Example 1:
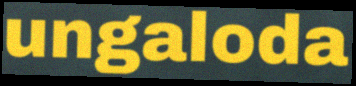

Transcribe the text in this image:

ungaloda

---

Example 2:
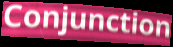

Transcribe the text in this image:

Conjunction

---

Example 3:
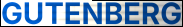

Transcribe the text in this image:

GUTENBERG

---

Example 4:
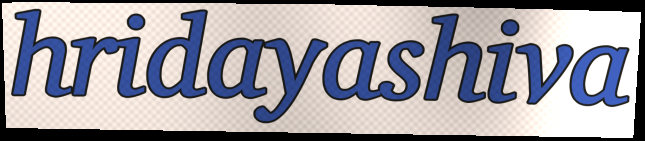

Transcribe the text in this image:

hridayashiva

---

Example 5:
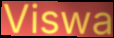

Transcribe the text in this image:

Viswa